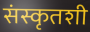
संस्कृतशी